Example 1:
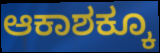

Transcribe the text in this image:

ಆಕಾಶಕ್ಕೂ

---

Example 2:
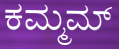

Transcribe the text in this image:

ಕಮ್ಮಮ್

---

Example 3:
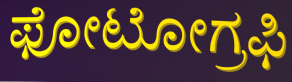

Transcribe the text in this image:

ಫೋಟೋಗ್ರಫಿ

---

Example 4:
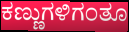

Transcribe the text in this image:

ಕಣ್ಣುಗಳಿಗಂತೂ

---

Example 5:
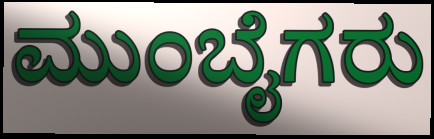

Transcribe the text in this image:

ಮುಂಬೈಗರು